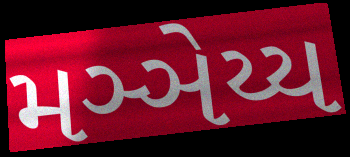
મઞ્ઞેય્ય